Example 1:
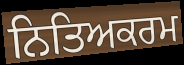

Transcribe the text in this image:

ਨਿਤਿਅਕਰਮ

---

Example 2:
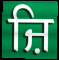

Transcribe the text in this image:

ਜ਼ਿ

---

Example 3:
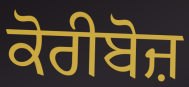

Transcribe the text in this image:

ਕੋਰੀਬੋਜ਼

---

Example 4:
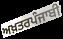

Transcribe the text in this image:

ਅਖ਼ਤਰਪੰਜਾਬੀ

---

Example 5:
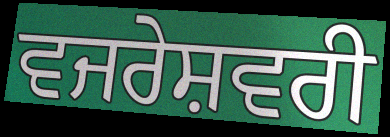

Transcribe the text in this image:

ਵਜਰੇਸ਼ਵਰੀ